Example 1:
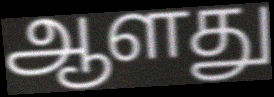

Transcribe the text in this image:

ஆளது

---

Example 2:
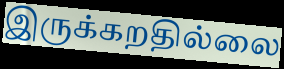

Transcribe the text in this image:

இருக்கறதில்லை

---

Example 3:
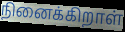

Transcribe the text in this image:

நினைக்கிறாள்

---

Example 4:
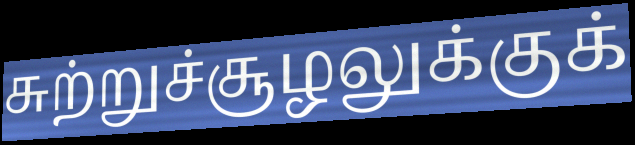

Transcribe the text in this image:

சுற்றுச்சூழலுக்குக்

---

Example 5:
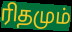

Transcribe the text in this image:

ரிதமும்